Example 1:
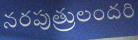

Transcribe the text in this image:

నరపుత్రులందరి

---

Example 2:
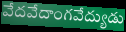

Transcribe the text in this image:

వేదవేదాంగవేద్యుడు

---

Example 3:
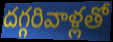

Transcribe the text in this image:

దగ్గరివాళ్లతో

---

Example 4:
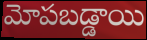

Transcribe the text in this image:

మోపబడ్డాయి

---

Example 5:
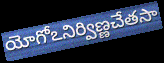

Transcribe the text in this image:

యోగోఽనిర్విణ్ణచేతసా